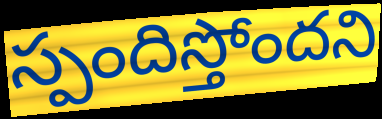
స్పందిస్తోందని